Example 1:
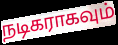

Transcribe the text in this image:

நடிகராகவும்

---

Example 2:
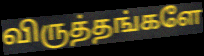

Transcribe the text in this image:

விருத்தங்களே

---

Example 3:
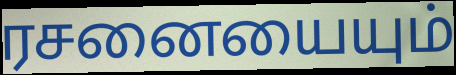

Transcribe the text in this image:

ரசனையையும்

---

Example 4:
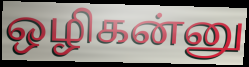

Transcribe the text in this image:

ஒழிகன்னு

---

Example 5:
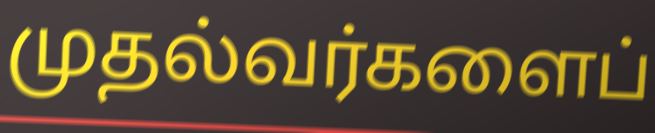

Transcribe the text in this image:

முதல்வர்களைப்